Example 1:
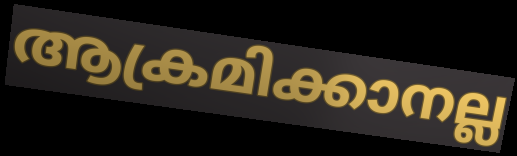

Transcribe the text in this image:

ആക്രമിക്കാനല്ല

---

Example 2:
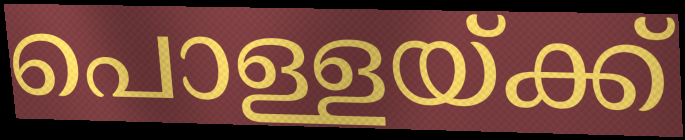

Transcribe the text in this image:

പൊള്ളയ്ക്ക്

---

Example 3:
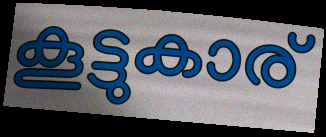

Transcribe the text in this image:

കൂട്ടുകാര്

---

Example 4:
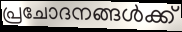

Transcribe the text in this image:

പ്രചോദനങ്ങൾക്ക്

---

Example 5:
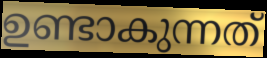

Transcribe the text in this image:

ഉണ്ടാകുന്നത്